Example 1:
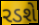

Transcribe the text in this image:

રડશે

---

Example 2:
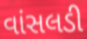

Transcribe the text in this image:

વાંસલડી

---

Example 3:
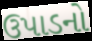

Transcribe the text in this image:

ઉપાડનો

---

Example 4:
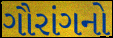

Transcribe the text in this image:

ગૌરાંગનો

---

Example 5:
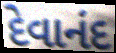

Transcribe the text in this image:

દેવાનંદ